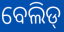
ବେଲିଡ୍